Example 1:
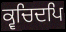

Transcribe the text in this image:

ਕ੍ਵਚਿਦਪਿ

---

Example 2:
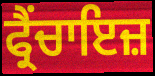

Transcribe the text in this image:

ਫ੍ਰੈਂਚਾਇਜ਼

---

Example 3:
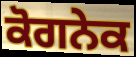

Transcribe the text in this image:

ਕੋਗਨੇਕ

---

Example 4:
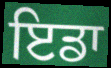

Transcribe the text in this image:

ਇਡਾ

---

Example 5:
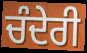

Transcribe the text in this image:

ਚੰਦੇਰੀ